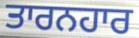
ਤਾਰਨਹਾਰ